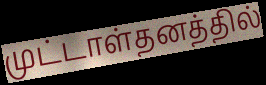
முட்டாள்தனத்தில்